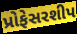
પ્રોફેસરશીપ